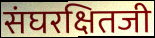
संघरक्षितजी